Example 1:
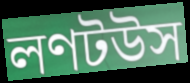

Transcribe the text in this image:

লণটউস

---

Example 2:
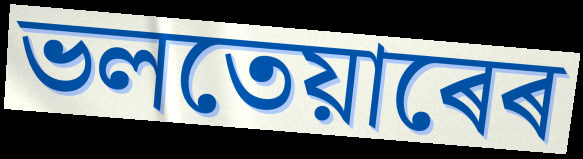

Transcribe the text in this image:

ভলতেয়াৰেৰ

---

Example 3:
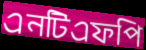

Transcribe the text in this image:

এনটিএফপি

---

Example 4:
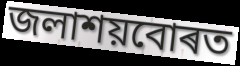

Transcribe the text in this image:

জলাশয়বোৰত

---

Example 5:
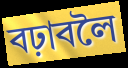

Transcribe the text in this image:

বঢ়াবলৈ